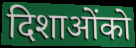
दिशाओंको